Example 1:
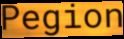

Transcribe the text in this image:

Pegion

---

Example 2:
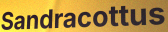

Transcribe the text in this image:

Sandracottus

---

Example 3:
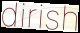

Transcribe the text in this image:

dirish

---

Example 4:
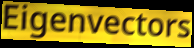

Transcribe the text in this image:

Eigenvectors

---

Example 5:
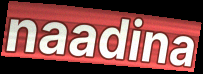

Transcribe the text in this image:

naadina